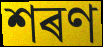
শৰণ